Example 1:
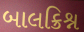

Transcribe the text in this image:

બાલક્રિશ્ન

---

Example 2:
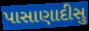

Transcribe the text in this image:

પાસાણાદીસુ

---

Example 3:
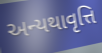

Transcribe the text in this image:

અન્યથાવૃત્તિ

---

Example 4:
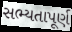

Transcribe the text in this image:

સભ્યતાપૂર્ણ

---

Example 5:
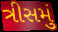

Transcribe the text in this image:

ત્રીસમું